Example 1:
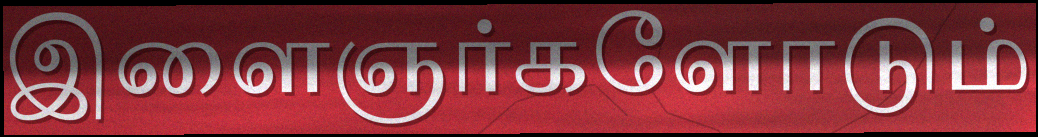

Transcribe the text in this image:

இளைஞர்களோடும்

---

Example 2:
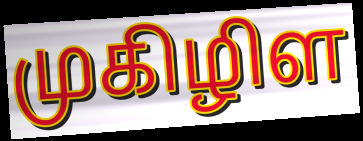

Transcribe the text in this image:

முகிழிள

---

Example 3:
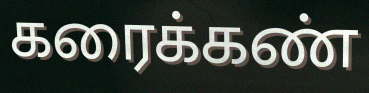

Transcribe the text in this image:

கரைக்கண்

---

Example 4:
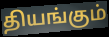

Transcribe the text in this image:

தியங்கும்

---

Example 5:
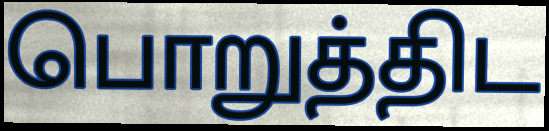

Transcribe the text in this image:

பொறுத்திட